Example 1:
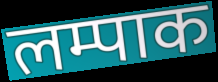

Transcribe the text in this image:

लम्पाक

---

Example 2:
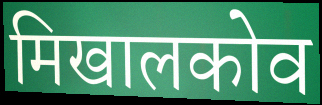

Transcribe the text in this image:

मिखालकोव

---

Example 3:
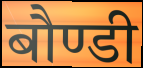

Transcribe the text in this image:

बौण्डी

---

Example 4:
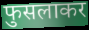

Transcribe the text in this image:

फुसलाकर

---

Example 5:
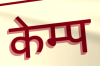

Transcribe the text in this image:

केम्प